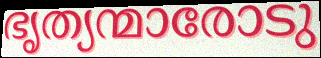
ഭൃത്യന്മാരോടു